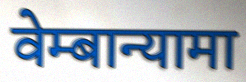
वेम्बान्यामा